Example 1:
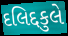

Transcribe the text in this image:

દલિદ્દકુલે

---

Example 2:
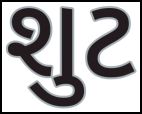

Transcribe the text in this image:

શુટ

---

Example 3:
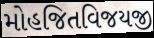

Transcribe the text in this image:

મોહજિતવિજયજી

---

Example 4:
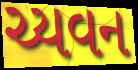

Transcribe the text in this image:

ચ્યવન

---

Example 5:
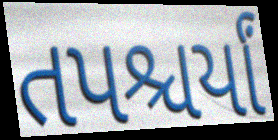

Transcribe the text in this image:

તપશ્ચર્યાં